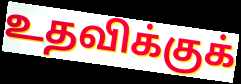
உதவிக்குக்